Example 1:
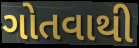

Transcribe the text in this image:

ગોતવાથી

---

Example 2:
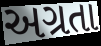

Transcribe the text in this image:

અગ્રતા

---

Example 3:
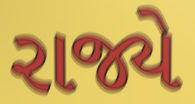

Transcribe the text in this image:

રાજ્યે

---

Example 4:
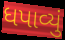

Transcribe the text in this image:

ધપાવ્યું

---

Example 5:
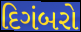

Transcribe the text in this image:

દિગંબરો